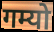
गम्यो